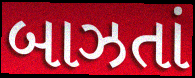
બાઝતાં